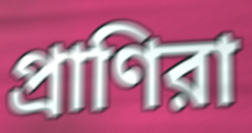
প্রাণিরা